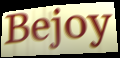
Bejoy